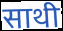
साथी